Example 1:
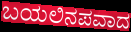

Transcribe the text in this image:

ಬಯಲಿನಪವಾದ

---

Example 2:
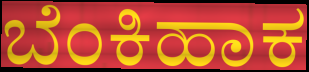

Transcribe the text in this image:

ಬೆಂಕಿಹಾಕ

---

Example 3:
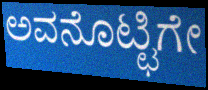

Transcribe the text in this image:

ಅವನೊಟ್ಟಿಗೇ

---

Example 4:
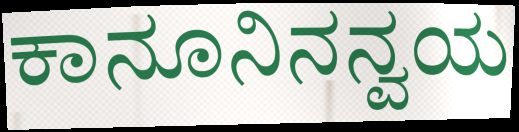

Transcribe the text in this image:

ಕಾನೂನಿನನ್ವಯ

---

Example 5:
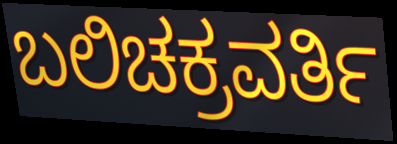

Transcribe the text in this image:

ಬಲಿಚಕ್ರವರ್ತಿ